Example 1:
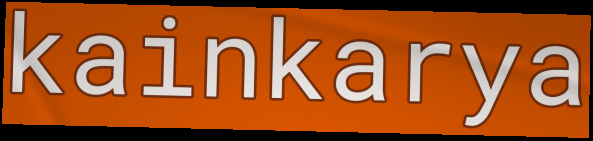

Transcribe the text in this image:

kainkarya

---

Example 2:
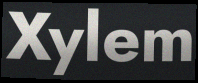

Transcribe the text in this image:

Xylem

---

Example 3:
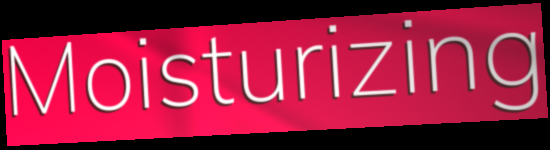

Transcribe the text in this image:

Moisturizing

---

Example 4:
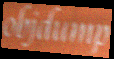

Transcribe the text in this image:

objdump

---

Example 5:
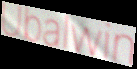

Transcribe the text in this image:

Ubalwin